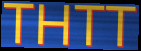
THTT